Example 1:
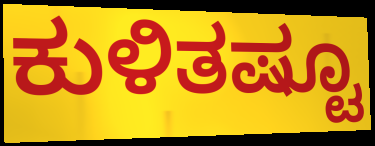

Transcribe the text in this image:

ಕುಳಿತಷ್ಟೂ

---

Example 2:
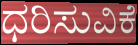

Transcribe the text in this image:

ಧರಿಸುವಿಕೆ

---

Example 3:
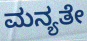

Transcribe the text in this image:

ಮನ್ಯತೇ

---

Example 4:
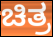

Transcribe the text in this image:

ಚಿತ್ರ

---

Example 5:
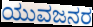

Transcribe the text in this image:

ಯುವಜನರ